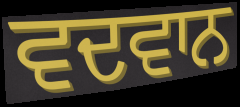
ਵਦਵਾਨ